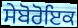
ਸੇਬੋਰੋਇਕ